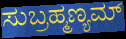
ಸುಬ್ರಹ್ಮಣ್ಯಮ್